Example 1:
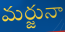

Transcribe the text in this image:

మర్జునా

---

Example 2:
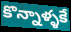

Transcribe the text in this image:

కొన్నాళ్ళకే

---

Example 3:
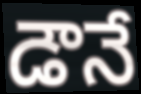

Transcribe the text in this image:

డౌనే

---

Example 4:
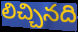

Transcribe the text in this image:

లిచ్చినది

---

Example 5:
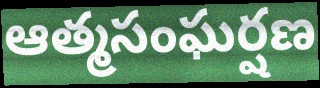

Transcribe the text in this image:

ఆత్మసంఘర్షణ